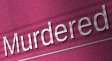
Murdered